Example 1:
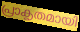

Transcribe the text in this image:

പ്രാകൃതമായി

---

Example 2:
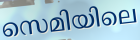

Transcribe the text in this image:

സെമിയിലെ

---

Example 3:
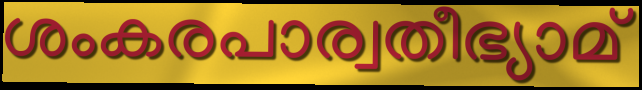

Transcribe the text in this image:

ശംകരപാര്വതീഭ്യാമ്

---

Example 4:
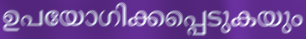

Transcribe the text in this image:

ഉപയോഗിക്കപ്പെടുകയും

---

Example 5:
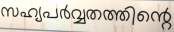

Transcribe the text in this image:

സഹ്യപർവ്വതത്തിന്റെ